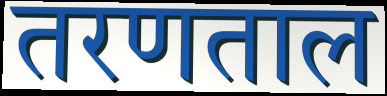
तरणताल